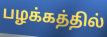
பழக்கத்தில்